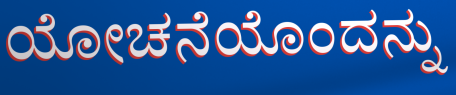
ಯೋಚನೆಯೊಂದನ್ನು